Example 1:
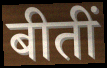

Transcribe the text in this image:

बीतीं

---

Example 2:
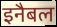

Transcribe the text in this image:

इनैबल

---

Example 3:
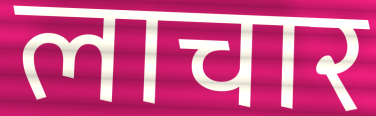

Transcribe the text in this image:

लाचार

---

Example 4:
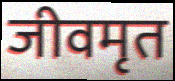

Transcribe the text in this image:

जीवमृत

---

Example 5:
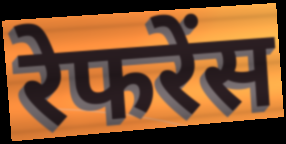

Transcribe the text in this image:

रेफरेंस